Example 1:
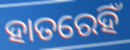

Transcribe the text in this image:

ହାତରେହିଁ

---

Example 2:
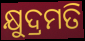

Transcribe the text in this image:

କ୍ଷୁଦ୍ରମତି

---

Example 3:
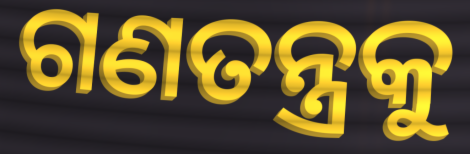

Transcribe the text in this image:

ଗଣତନ୍ତ୍ରକୁ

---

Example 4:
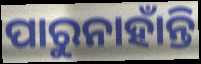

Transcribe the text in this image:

ପାରୁନାହାଁନ୍ତି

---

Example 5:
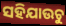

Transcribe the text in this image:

ସହିଯାଉଚୁ